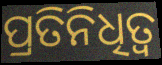
ପ୍ରତିନିଧିତ୍ବ